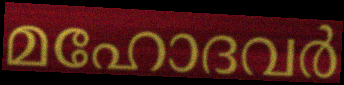
മഹോദവർ